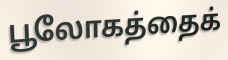
பூலோகத்தைக்